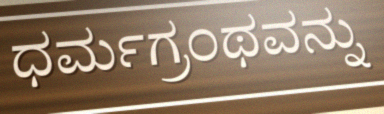
ಧರ್ಮಗ್ರಂಥವನ್ನು